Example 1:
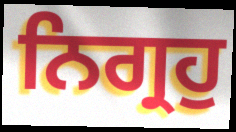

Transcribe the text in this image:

ਨਿਗ੍ਰਹੁ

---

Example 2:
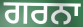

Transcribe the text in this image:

ਗਰਨਾ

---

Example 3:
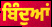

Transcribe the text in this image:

ਬਿੰਦੁਆਂ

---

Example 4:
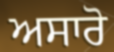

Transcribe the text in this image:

ਅਸਾਰੋ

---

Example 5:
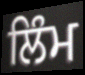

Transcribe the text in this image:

ਲਿੰਮ